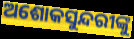
ଅଶୋକସୁନ୍ଦରୀଙ୍କୁ